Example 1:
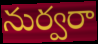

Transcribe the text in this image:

నుర్వరా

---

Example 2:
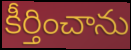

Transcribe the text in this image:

కీర్తించాను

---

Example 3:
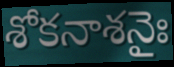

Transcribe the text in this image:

శోకనాశనైః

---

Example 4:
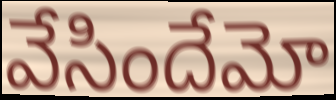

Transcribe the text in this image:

వేసిందేమో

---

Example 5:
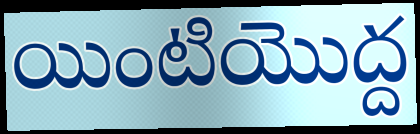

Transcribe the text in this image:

యింటియొద్ద